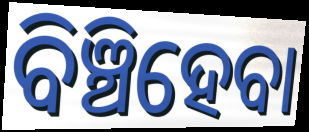
ବିଞ୍ଚିହେବା